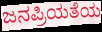
ಜನಪ್ರಿಯತೆಯ